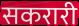
सकरारी